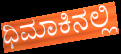
ಧಿಮಾಕಿನಲ್ಲಿ